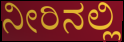
ನೀರಿನಲ್ಲಿ